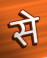
से